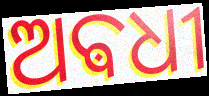
ଅଵଧୀ